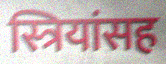
स्त्रियांसह